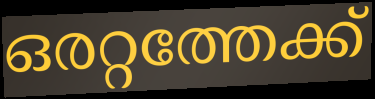
ഒരറ്റത്തേക്ക്